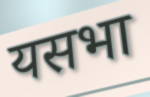
यसभा